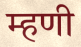
म्हणी